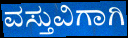
ವಸ್ತುವಿಗಾಗಿ